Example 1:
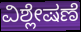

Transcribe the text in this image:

ವಿಶ್ಲೇಷಣೆ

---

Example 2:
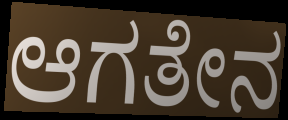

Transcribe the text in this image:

ಆಗತೇನ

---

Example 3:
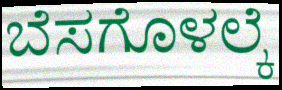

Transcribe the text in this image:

ಬೆಸಗೊಳಲ್ಕೆ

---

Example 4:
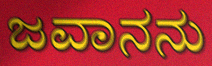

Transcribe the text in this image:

ಜವಾನನು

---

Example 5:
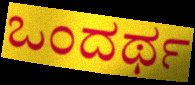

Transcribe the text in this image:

ಒಂದರ್ಥ